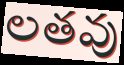
లతవు